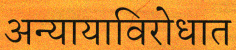
अन्यायाविरोधात